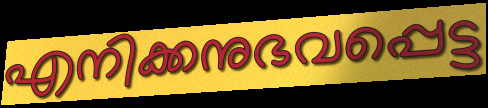
എനിക്കനുഭവപ്പെട്ട